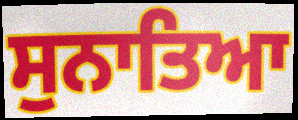
ਸੁਨਾਤਿਆ